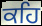
ਕਹਿ